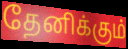
தேனிக்கும்